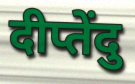
दीप्तेंदु